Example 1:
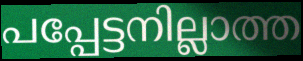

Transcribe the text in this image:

പപ്പേട്ടനില്ലാത്ത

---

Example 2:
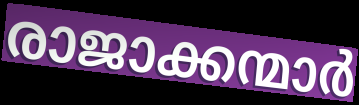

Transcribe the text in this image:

രാജാക്കന്മാർ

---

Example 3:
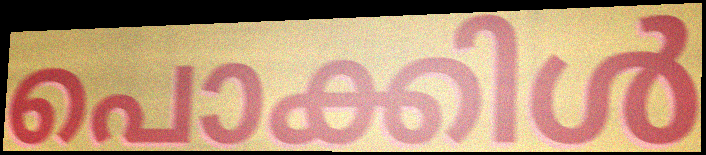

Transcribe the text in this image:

പൊക്കിൾ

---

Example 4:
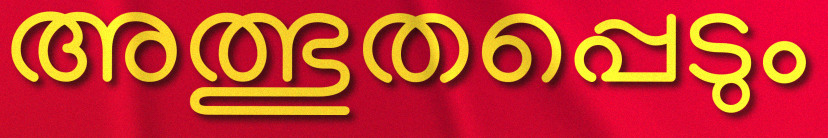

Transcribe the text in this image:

അത്ഭുതപ്പെടും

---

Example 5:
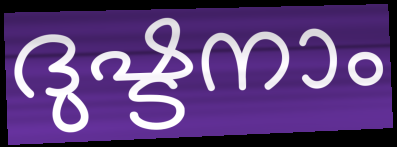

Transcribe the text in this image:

ദുഷ്ടനാം